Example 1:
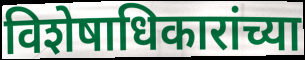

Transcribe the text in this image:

विशेषाधिकारांच्या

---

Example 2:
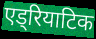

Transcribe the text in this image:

एड्रियाटिक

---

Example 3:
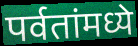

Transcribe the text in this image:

पर्वतांमध्ये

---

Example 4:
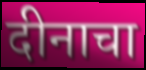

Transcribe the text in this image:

दीनाचा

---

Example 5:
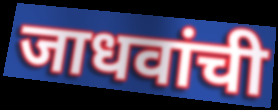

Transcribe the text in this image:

जाधवांची